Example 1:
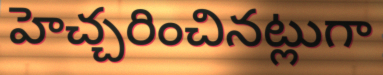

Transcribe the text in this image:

హెచ్చరించినట్లుగా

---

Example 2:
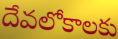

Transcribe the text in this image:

దేవలోకాలకు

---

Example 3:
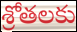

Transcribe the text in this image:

శ్రోతలకు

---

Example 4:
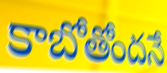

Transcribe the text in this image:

కాబోతోందనే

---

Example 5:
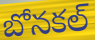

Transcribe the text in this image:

బోనకల్